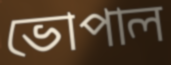
ভোপাল